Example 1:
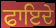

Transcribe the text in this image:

ਫਾਇਦੇ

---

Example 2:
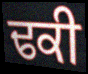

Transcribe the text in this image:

ਢਕੀ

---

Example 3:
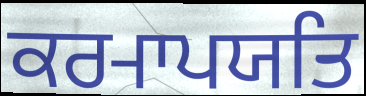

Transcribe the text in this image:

ਕਰ੍ਮਾਪਯਤਿ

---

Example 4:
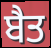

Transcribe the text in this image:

ਬੈਤ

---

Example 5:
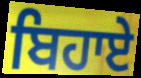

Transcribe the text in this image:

ਬਿਹਾਏ